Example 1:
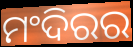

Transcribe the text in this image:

ମଂଦିରର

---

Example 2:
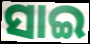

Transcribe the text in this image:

ସାଇ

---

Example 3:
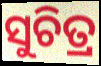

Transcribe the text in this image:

ସୁଚିତ୍ର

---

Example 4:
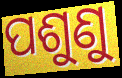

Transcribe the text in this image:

ପଶୁଣୁ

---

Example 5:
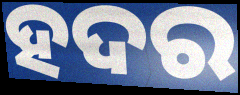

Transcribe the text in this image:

ହଦର